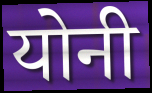
योनी